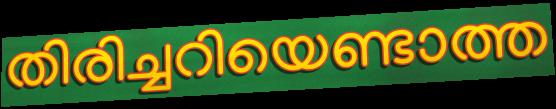
തിരിച്ചറിയെണ്ടാത്ത